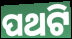
ପଥଟି